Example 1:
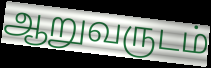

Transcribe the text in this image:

ஆறுவருடம்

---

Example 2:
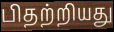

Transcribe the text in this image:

பிதற்றியது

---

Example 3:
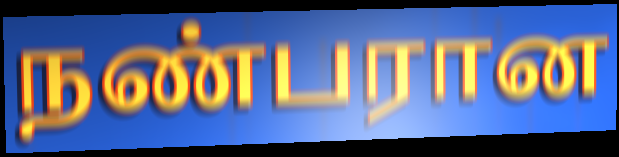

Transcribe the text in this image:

நண்பரான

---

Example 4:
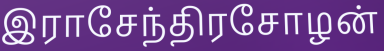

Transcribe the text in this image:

இராசேந்திரசோழன்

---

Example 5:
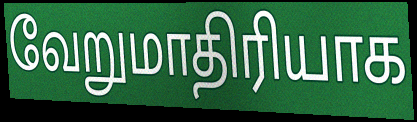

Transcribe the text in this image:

வேறுமாதிரியாக